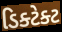
ડિક્ટેક્ટ